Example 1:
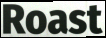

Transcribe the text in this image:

Roast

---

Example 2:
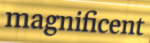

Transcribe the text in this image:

magnificent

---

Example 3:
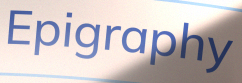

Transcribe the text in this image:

Epigraphy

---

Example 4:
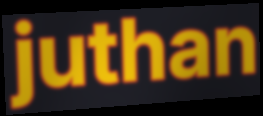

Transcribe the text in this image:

juthan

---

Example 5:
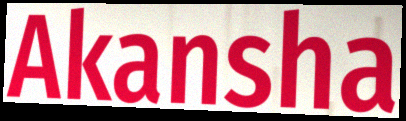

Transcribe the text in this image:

Akansha